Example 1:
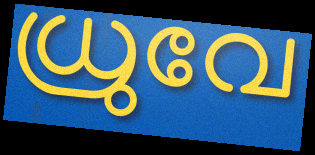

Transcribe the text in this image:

ധ്രുവേ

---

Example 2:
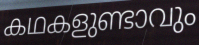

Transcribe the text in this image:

കഥകളുണ്ടാവും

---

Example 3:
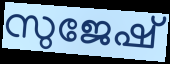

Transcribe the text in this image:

സുജേഷ്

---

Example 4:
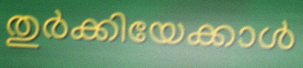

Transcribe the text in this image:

തുർക്കിയേക്കാൾ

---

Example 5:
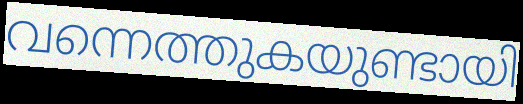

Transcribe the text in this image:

വന്നെത്തുകയുണ്ടായി